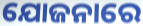
ଯୋଜନାରେ